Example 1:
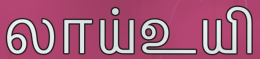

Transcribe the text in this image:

லாய்உயி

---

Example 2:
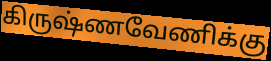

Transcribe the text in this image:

கிருஷ்ணவேணிக்கு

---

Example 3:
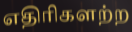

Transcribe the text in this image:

எதிரிகளற்ற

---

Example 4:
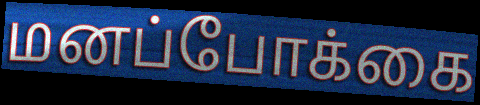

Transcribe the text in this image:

மனப்போக்கை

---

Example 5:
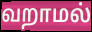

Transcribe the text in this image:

வறாமல்